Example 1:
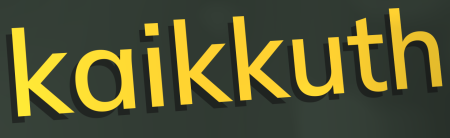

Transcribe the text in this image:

kaikkuth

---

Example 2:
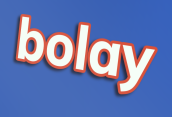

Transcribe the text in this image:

bolay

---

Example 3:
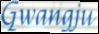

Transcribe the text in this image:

Gwangju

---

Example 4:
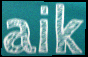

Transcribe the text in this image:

aik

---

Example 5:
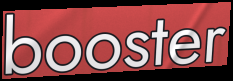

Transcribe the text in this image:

booster